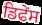
ਡਿਫੇਂਸ